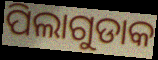
ପିଲାଗୁଡାକ